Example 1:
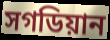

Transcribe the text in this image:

সগডিয়ান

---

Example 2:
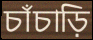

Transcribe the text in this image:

চাঁচাড়ি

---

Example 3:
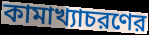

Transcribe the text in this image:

কামাখ্যাচরণের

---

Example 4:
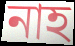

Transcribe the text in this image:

নাহ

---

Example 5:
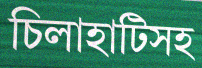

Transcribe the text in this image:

চিলাহাটিসহ